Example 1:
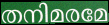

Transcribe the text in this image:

തനിമരമേ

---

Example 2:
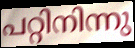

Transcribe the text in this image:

പറ്റിനിന്നു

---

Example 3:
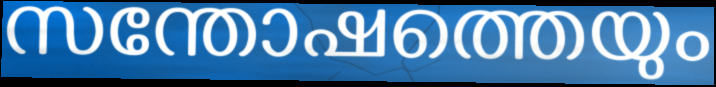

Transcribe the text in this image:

സന്തോഷത്തെയും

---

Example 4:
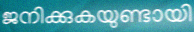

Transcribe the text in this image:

ജനിക്കുകയുണ്ടായി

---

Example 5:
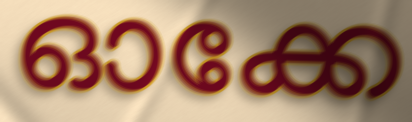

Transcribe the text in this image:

ഓക്കേ